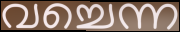
വച്ചെന്ന